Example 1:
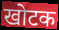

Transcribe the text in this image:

खोटक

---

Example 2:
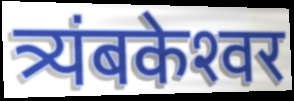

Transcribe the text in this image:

त्र्यंबकेश्वर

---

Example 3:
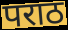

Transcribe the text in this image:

पराठ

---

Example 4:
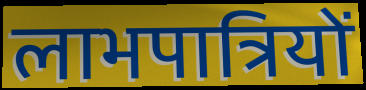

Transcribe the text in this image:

लाभपात्रियों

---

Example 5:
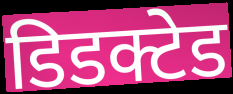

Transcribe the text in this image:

डिडक्टेड